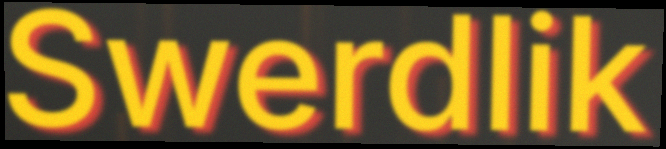
Swerdlik